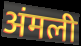
अंमली